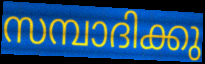
സമ്പാദിക്കു